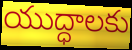
యుద్ధాలకు